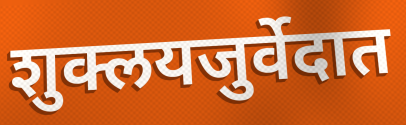
शुक्लयजुर्वेदात